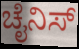
ಚೈನಿಸ್